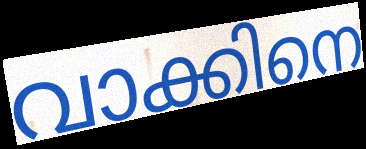
വാക്കിനെ